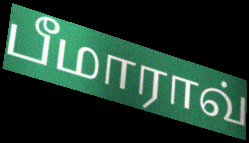
பீமாராவ்